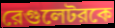
রেগুলেটরকে